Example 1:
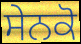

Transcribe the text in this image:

ਸੇਨਕੋ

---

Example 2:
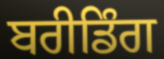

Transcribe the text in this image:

ਬਰੀਡਿੰਗ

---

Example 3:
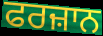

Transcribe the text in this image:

ਫਰਜ਼ਾਨ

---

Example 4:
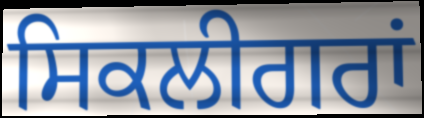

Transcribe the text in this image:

ਸਿਕਲੀਗਰਾਂ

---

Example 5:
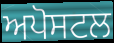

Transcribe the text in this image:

ਅਪੋਸਟਲ